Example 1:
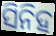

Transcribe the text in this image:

ସିନିହ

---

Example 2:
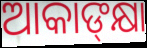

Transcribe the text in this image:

ଆକାଙ୍‍କ୍ଷା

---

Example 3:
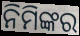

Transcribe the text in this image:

ନିମିଙ୍କର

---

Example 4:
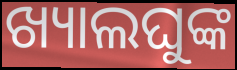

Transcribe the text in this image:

ଖ୍ୟାଲଘୁଙ୍କ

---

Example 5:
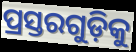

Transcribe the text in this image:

ପ୍ରସ୍ତରଗୁଡ଼ିକୁ